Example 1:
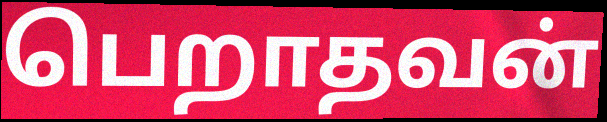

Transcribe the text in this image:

பெறாதவன்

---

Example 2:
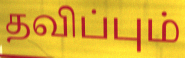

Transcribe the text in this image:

தவிப்பும்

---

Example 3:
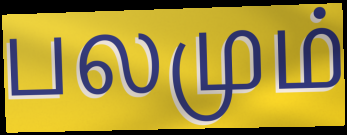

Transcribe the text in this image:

பலமும்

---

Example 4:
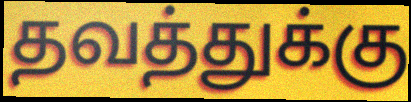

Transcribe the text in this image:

தவத்துக்கு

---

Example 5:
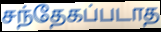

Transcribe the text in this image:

சந்தேகப்படாத